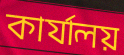
কাৰ্যালয়